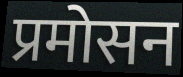
प्रमोसन